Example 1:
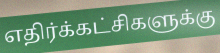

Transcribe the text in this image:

எதிர்க்கட்சிகளுக்கு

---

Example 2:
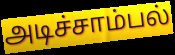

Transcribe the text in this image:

அடிச்சாம்பல்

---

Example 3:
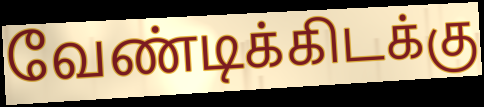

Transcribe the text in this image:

வேண்டிக்கிடக்கு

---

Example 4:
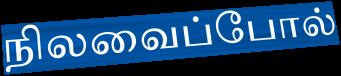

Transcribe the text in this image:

நிலவைப்போல்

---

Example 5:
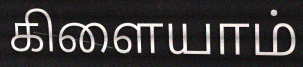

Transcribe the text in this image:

கிளையாம்